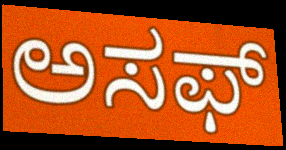
ಅಸಫ್